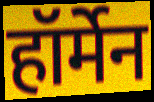
हॉर्मेन